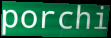
porchi